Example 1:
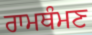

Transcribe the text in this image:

ਰਾਮਥੰਮਣ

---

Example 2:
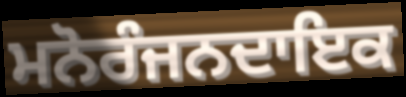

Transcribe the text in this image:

ਮਨੋਰੰਜਨਦਾਇਕ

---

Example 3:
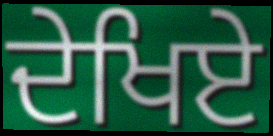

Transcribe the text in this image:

ਦੇਖਿਏ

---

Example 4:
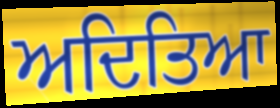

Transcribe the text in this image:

ਅਦਿਤਿਆ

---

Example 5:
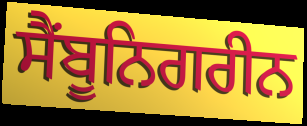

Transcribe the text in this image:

ਸੈਂਬੂਨਿਗਰੀਨ